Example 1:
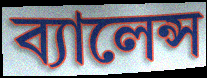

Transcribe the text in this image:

ব্যালেন্স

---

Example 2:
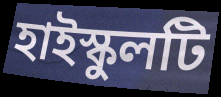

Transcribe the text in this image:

হাইস্কুলটি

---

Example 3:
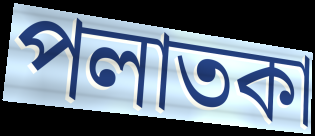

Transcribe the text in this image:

পলাতকা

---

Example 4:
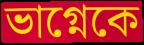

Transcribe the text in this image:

ভাগ্নেকে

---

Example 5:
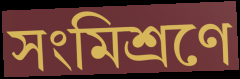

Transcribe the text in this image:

সংমিশ্রণে